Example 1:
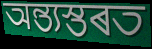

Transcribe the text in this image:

অন্ত্যস্তৰত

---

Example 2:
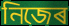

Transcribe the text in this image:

নিজেৰ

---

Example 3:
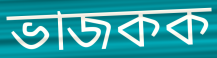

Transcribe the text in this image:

ভাজকক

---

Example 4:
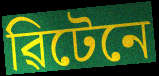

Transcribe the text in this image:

ৱিটেনে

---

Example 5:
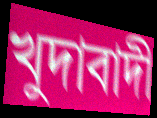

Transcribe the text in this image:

খুদাবাদী